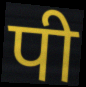
पी